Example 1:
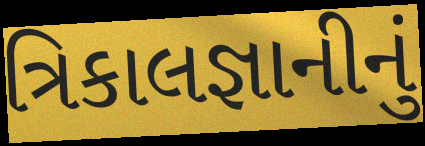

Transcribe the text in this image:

ત્રિકાલજ્ઞાનીનું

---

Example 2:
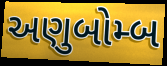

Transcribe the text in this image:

અણુબોમ્બ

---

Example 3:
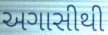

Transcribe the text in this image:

અગાસીથી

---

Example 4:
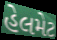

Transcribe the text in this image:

હેલમેટ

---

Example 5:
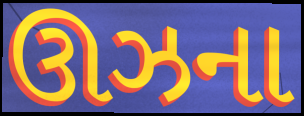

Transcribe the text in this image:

ઊઝના